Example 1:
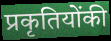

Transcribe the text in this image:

प्रकृतियोंकी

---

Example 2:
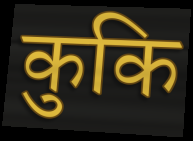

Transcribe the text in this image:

कुकि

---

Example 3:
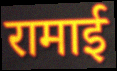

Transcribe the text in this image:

रामाई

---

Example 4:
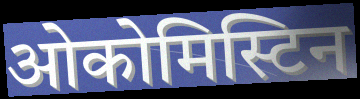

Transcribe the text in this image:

ओकोमिस्टिन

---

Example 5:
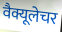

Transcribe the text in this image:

वैक्यूलेचर